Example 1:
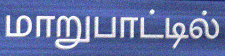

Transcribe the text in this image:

மாறுபாட்டில்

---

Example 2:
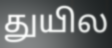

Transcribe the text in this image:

துயில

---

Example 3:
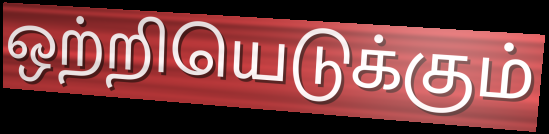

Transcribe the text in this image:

ஒற்றியெடுக்கும்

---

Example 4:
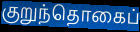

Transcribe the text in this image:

குறுந்தொகைப்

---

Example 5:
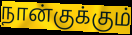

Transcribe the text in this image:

நான்குக்கும்